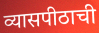
व्यासपीठाची